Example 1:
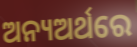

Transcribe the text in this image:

ଅନ୍ୟଅର୍ଥରେ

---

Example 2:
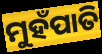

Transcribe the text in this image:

ମୁହଁପାତି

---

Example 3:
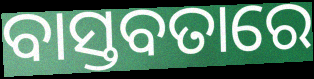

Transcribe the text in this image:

ବାସ୍ତବତାରେ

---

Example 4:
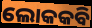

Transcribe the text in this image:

ଲୋକକବି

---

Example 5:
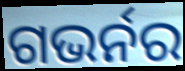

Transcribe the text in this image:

ଗଭର୍ନର